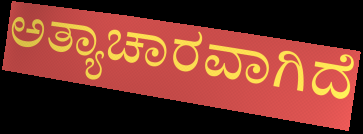
ಅತ್ಯಾಚಾರವಾಗಿದೆ